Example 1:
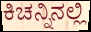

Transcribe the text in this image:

ಕಿಚನ್ನಿನಲ್ಲಿ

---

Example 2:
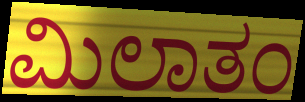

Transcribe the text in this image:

ಮಿಲಾತಂ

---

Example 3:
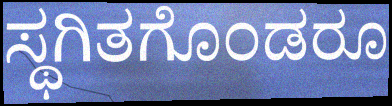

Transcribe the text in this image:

ಸ್ಥಗಿತಗೊಂಡರೂ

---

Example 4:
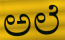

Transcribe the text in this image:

ಅಲೆ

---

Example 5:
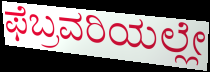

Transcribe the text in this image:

ಫೆಬ್ರವರಿಯಲ್ಲೇ